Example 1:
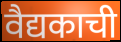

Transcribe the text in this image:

वैद्यकाची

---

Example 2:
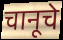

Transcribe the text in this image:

चानूचे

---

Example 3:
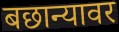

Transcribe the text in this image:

बछान्यावर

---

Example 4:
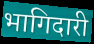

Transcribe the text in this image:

भागिदारी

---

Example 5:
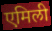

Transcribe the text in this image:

एमिली